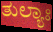
ತುಲ್ಯಾಃ